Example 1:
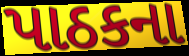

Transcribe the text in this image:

પાઠકના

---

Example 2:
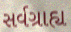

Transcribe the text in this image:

સર્વગ્રાહ્ય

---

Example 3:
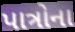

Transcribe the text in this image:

પાત્રોના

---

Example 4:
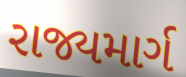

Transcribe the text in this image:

રાજ્યમાર્ગ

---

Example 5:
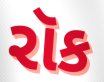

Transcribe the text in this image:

રૉક